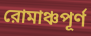
রোমাঞ্চপূর্ণ